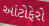
આંટોફેરો